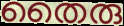
തൈരു